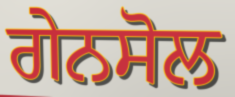
ਗੇਨਸੋਲ